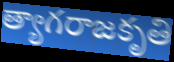
త్యాగరాజకృతి